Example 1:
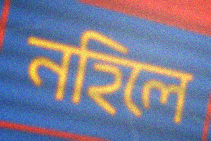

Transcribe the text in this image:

নহিলে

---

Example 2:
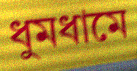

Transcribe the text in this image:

ধুমধামে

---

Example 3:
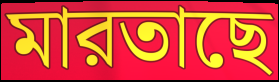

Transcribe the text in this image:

মারতাছে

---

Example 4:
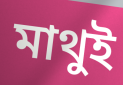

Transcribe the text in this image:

মাথুই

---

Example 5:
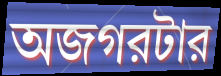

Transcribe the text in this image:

অজগরটার